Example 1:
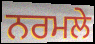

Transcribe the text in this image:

ਨਰਮਲੇ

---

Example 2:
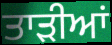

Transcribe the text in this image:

ਤਾੜੀਆਂ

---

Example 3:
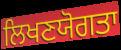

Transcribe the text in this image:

ਲਿਖਣਯੋਗਤਾ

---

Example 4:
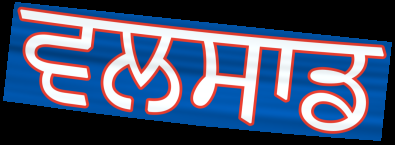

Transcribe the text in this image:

ਵਲਸਾਡ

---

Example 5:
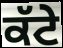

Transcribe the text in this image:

ਕੱਟੇ